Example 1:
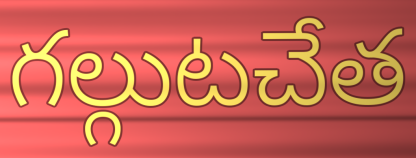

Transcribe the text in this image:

గల్గుటచేత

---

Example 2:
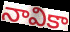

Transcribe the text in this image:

నావికా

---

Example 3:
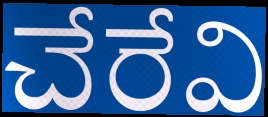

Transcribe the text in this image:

చేరేవి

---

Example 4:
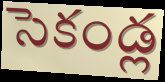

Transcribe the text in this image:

సెకండ్ల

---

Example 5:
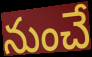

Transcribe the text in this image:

నుంచే